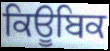
ਕਿਊਬਿਕ